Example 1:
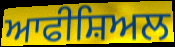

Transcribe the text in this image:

ਆਫੀਸ਼ਿਅਲ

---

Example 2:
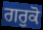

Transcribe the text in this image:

ਗਰੁਕੋ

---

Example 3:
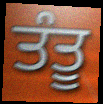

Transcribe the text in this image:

ਤੰਤੂ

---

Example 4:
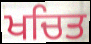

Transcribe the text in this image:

ਖਚਿਤ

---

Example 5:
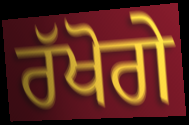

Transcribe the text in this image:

ਰੱਖੋਗੇ